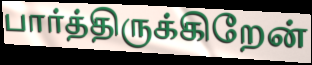
பார்த்திருக்கிறேன்